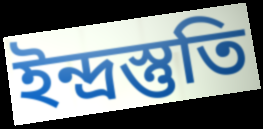
ইন্দ্রস্তুতি